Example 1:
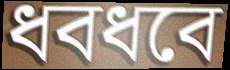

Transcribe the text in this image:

ধবধবে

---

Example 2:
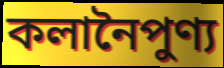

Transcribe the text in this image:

কলানৈপুণ্য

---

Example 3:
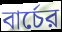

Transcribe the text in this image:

বার্চের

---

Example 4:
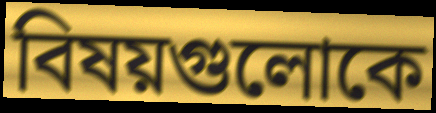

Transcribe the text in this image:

বিষয়গুলোকে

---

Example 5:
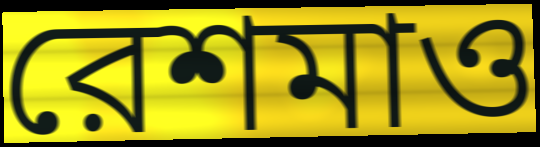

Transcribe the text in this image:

রেশমাও